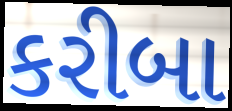
કરીબા